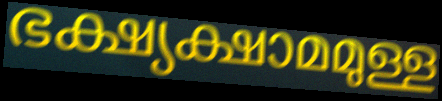
ഭക്ഷ്യക്ഷാമമുള്ള